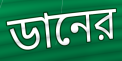
ডানের